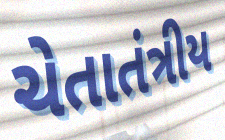
ચેતાતંત્રીય